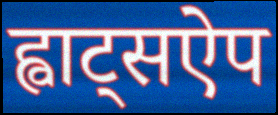
ह्वाट्सऐप